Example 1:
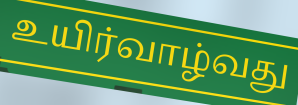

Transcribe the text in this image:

உயிர்வாழ்வது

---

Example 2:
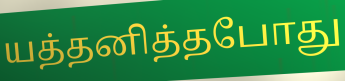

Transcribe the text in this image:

யத்தனித்தபோது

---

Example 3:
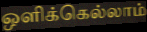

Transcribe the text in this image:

ஒளிக்கெல்லாம்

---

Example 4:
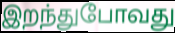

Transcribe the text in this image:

இறந்துபோவது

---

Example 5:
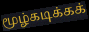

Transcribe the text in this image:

மூழ்கடிக்கக்